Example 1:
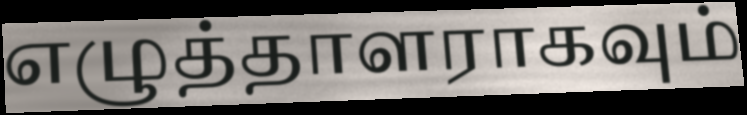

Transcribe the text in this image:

எழுத்தாளராகவும்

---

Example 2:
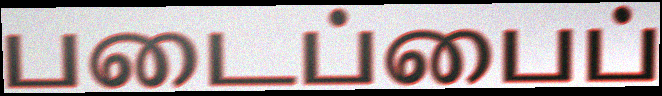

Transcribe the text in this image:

படைப்பைப்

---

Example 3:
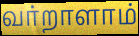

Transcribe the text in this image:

வர்றாளாம்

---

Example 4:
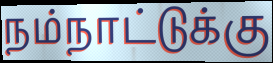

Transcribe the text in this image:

நம்நாட்டுக்கு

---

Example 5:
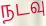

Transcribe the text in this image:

நடவு